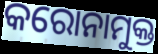
କରୋନାମୁକ୍ତ